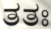
ತತಃ